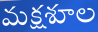
మక్షశూల